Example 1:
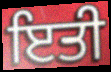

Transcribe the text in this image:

ਇਤੀ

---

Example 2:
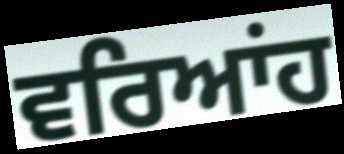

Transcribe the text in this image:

ਵਰਿਆਂਹ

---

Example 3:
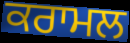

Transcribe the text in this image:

ਕਰਾਮਲ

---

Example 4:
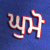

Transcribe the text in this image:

ਘੁਮੋ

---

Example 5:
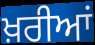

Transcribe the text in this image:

ਖ਼ਰੀਆਂ